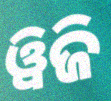
ୱିଜି